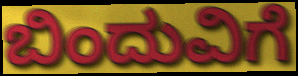
ಬಿಂದುವಿಗೆ